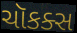
ચૉકક્સ